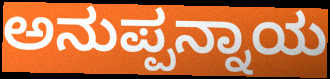
ಅನುಪ್ಪನ್ನಾಯ